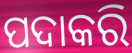
ପଦାକରି